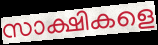
സാക്ഷികളെ